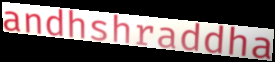
andhshraddha